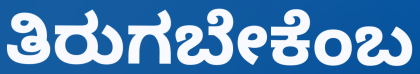
ತಿರುಗಬೇಕೆಂಬ